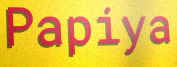
Papiya